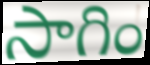
సాగిం